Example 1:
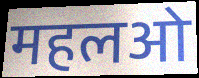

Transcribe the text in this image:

महलओ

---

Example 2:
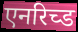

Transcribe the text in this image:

एनरिच्ड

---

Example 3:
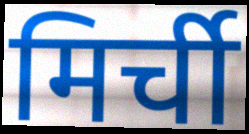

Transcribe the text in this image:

मिर्ची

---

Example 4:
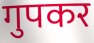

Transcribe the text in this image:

गुपकर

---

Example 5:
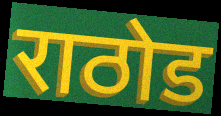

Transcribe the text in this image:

राठोड